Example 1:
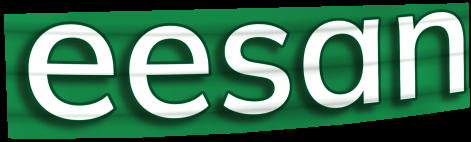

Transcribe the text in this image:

eesan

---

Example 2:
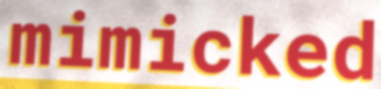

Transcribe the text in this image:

mimicked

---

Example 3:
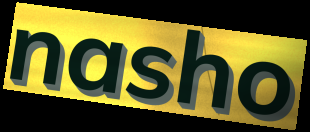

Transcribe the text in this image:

nasho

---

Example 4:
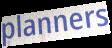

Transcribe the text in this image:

planners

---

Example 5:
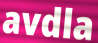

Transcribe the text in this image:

avdla